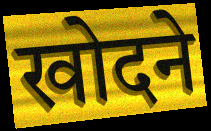
खोदने